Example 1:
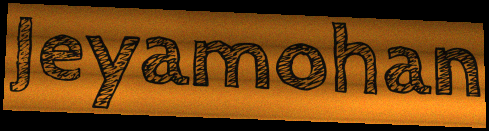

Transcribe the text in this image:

Jeyamohan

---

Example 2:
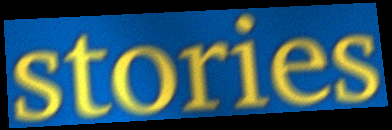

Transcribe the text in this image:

stories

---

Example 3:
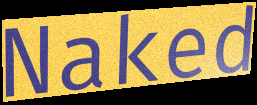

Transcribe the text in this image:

Naked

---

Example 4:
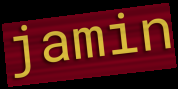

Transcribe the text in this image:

jamin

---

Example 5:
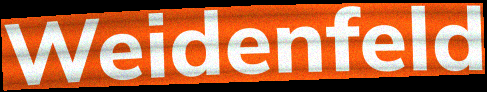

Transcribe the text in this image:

Weidenfeld